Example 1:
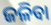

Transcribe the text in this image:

ଜଳିବା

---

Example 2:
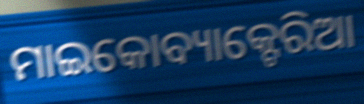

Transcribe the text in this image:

ମାଇକୋବ୍ୟାକ୍ଟେରିଆ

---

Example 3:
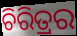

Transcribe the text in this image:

ଚିରିତ୍ରର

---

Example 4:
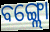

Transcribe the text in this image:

ବଙ୍ଗ୍ଲୋ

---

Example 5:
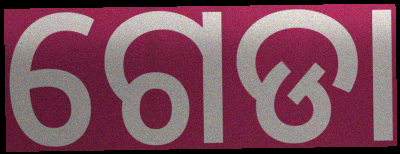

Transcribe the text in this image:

ଗେଡା